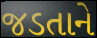
જડતાને